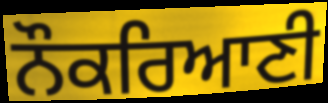
ਨੌਕਰਿਆਣੀ